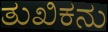
ತುಖಿಕನು